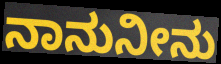
ನಾನುನೀನು